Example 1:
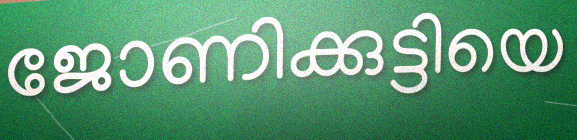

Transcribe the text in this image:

ജോണിക്കുട്ടിയെ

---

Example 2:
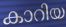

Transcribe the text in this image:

കാറിയ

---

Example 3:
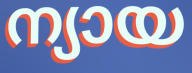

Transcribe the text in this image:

ന്യായ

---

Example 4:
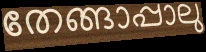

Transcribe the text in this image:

തേങ്ങാപ്പാലു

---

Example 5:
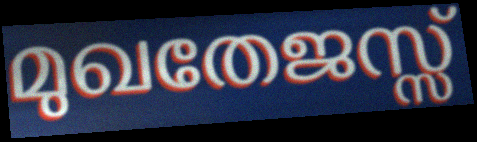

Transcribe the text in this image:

മുഖതേജസ്സ്